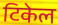
टिकेल